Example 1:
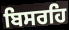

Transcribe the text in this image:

ਬਿਸਰਹਿ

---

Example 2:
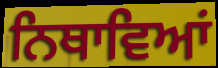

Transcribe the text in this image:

ਨਿਥਾਵਿਆਂ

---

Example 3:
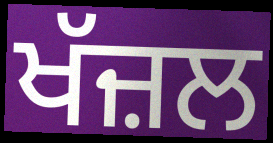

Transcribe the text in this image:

ਖੱਜ਼ਲ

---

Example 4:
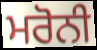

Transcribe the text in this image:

ਮਰੋਨੀ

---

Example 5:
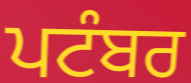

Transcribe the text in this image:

ਪਟੰਬਰ